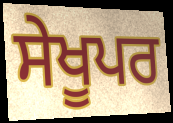
ਸੇਖੂਪਰ